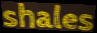
shales